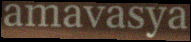
amavasya